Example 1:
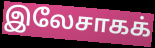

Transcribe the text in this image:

இலேசாகக்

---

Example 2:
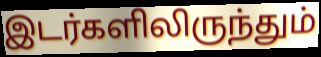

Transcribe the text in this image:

இடர்களிலிருந்தும்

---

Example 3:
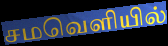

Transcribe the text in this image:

சமவெளியில்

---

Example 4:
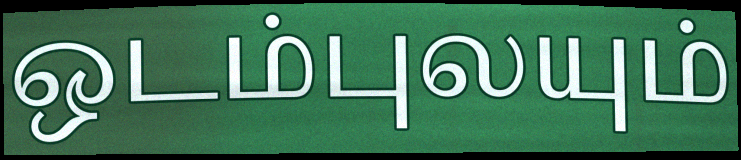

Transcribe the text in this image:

ஒடம்புலயும்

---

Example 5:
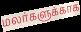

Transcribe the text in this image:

மலர்களுக்காக